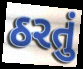
ઠરતું